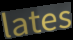
lates